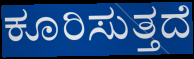
ಕೂರಿಸುತ್ತದೆ